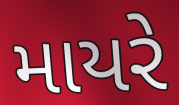
માયરે